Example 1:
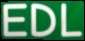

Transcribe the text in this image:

EDL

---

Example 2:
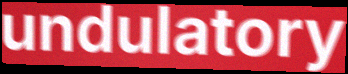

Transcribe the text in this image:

undulatory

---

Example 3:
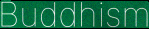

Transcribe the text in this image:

Buddhism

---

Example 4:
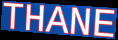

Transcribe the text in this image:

THANE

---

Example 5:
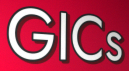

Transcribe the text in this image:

GICs